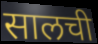
सालची